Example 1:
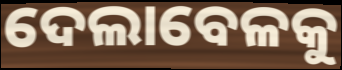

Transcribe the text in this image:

ଦେଲାବେଳକୁ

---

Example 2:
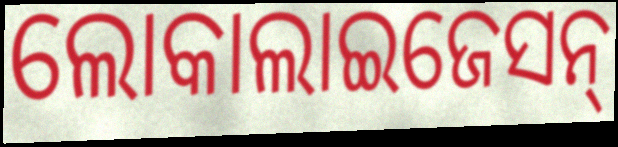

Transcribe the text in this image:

ଲୋକାଲାଇଜେସନ୍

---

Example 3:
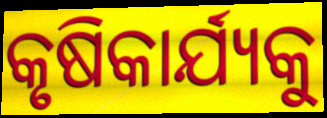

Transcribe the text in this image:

କୃଷିକାର୍ଯ୍ୟକୁ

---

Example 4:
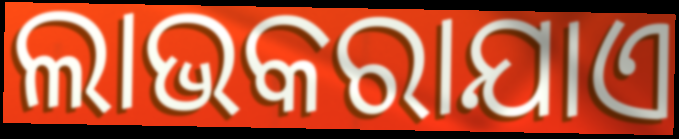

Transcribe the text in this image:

ଲାଭକରାଯାଏ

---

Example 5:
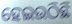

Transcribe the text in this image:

ହେଇଉଠିଛି